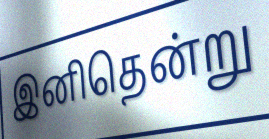
இனிதென்று